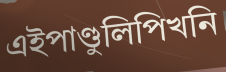
এইপাণ্ডুলিপিখনি